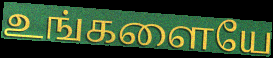
உங்களையே